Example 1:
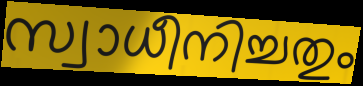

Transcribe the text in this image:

സ്വാധീനിച്ചതും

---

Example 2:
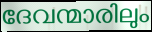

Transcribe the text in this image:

ദേവന്മാരിലും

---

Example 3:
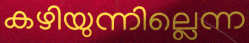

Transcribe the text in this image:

കഴിയുന്നില്ലെന്ന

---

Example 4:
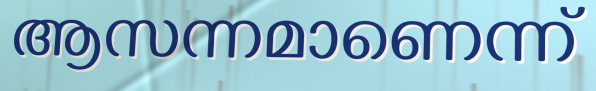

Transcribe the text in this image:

ആസന്നമാണെന്ന്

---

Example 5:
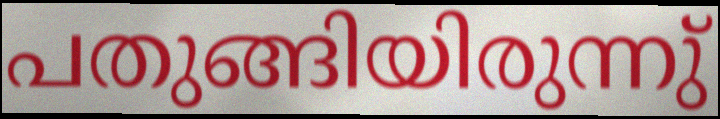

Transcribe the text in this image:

പതുങ്ങിയിരുന്നു്